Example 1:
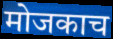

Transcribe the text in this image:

मोजकाच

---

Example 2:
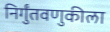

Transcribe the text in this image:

निर्गुंतवणुकीला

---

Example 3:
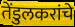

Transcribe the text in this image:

तेंडुलकरांचे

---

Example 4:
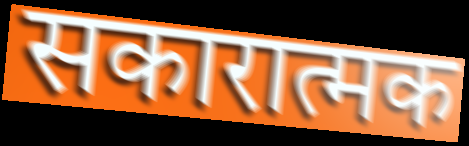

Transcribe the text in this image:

सकारात्‍मक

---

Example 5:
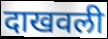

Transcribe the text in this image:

दाखवली